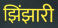
झिंझारी